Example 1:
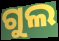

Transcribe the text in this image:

ଗୁଲ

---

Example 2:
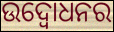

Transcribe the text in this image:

ଉଦ୍ବୋଧନର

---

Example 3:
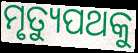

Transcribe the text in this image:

ମୃତ୍ୟୁପଥକୁ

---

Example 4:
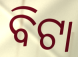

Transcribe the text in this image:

ବିଟା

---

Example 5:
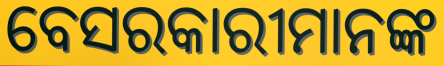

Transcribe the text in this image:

ବେସରକାରୀମାନଙ୍କ